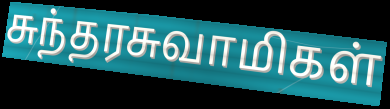
சுந்தரசுவாமிகள்